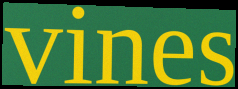
vines